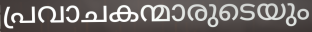
പ്രവാചകന്മാരുടെയും